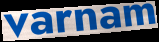
varnam